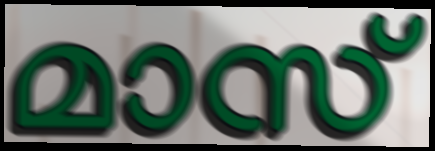
മാസ്